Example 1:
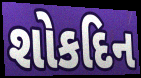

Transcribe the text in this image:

શોકદિન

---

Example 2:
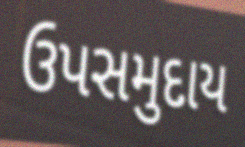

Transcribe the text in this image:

ઉપસમુદાય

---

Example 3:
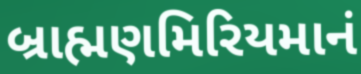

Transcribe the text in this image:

બ્રાહ્મણમિરિયમાનં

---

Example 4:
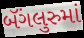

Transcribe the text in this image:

બૅંગલુરુમાં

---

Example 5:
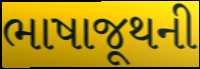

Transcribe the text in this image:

ભાષાજૂથની